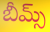
బీమ్స్